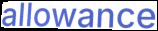
allowance